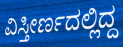
ವಿಸ್ತೀರ್ಣದಲ್ಲಿದ್ದ